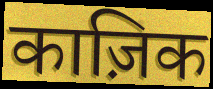
काज़िक